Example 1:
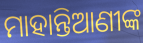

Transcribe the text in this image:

ମାହାନ୍ତିଆଣୀଙ୍କ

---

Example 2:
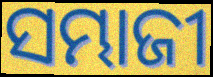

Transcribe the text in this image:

ସମ୍ଭାଜୀ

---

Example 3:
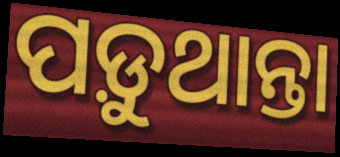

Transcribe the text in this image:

ପଡ଼ୁଥାନ୍ତା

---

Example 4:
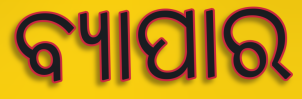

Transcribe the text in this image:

ବ୍ଯାପାର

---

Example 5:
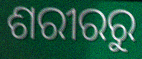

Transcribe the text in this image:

ଶରୀରରୁ